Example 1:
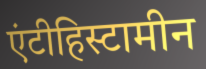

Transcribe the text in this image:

एंटीहिस्टामीन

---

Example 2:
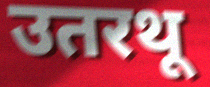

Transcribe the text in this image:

उतरथू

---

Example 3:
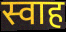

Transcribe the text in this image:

स्वाह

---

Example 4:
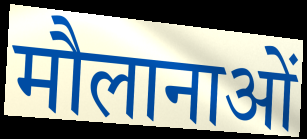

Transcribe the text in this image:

मौलानाओं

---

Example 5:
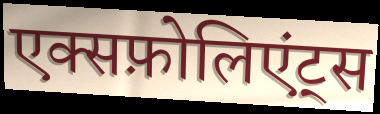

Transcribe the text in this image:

एक्सफ़ोलिएंट्स